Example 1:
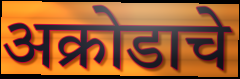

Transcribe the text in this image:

अक्रोडाचे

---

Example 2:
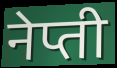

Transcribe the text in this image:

नेप्ती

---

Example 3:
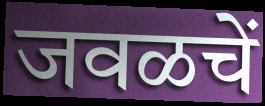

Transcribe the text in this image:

जवळचें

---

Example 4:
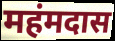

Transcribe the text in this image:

महंमदास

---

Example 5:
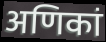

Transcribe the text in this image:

अणिकां